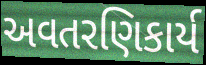
અવતરણિકાર્ય